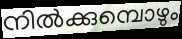
നിൽക്കുമ്പൊഴും